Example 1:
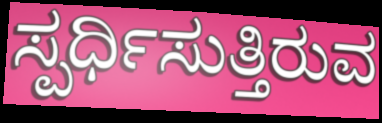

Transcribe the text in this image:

ಸ್ಪರ್ಧಿಸುತ್ತಿರುವ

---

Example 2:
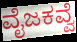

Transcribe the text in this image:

ವೈಜಕವ್ವೆ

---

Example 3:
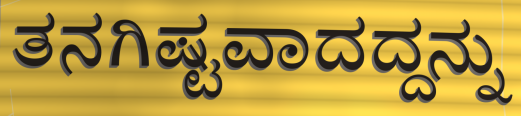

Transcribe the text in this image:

ತನಗಿಷ್ಟವಾದದ್ದನ್ನು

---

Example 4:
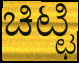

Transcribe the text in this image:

ಚಿಟ್ಟಿ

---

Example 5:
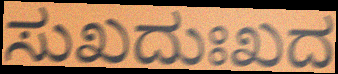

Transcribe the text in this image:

ಸುಖದುಃಖದ